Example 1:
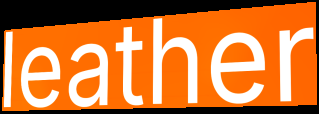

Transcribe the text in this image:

leather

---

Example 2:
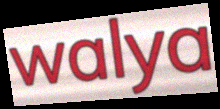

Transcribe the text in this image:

walya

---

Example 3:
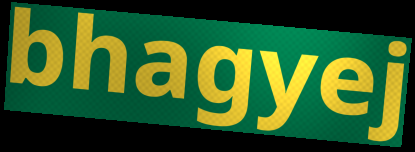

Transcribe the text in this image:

bhagyej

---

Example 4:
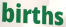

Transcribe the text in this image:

births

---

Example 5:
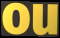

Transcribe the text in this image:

ou